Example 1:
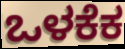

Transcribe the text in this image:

ಒಳಕೆಕ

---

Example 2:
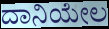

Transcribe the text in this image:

ದಾನಿಯೇಲ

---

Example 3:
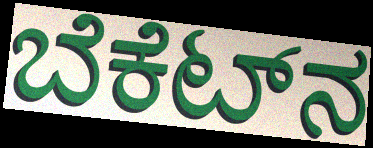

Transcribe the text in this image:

ಬೆಕೆಟ್‌ನ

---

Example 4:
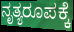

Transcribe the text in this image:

ನೃತ್ಯರೂಪಕ್ಕೆ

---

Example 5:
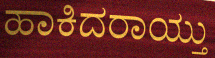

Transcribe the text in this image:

ಹಾಕಿದರಾಯ್ತು